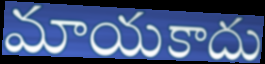
మాయకాదు